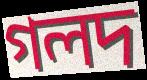
গলদ